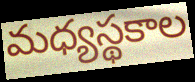
మధ్యస్థకాల